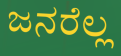
ಜನರೆಲ್ಲ